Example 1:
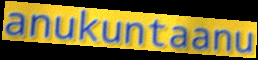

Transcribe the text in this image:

anukuntaanu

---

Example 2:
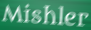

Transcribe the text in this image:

Mishler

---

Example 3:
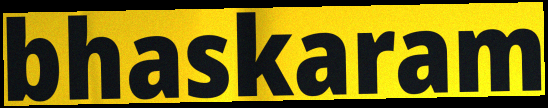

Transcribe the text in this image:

bhaskaram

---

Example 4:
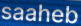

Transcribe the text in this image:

saaheb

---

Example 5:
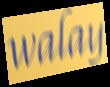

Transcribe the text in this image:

walay